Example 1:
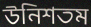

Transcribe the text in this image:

উনিশতম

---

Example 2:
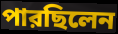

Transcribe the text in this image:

পারছিলেন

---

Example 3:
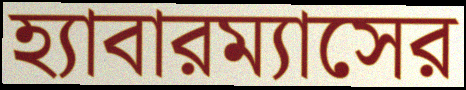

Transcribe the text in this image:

হ্যাবারম্যাসের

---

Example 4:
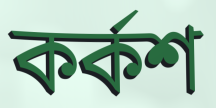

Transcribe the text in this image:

কর্কশ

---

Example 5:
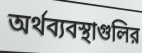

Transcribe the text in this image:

অর্থব্যবস্থাগুলির